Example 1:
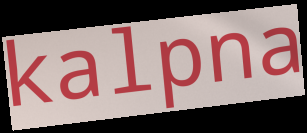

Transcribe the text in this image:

kalpna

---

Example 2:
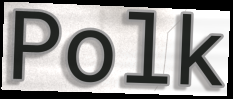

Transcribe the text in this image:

Polk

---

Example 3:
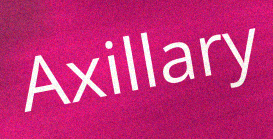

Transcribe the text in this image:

Axillary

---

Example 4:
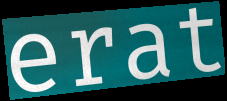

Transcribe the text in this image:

erat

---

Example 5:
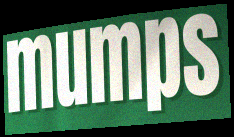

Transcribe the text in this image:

mumps